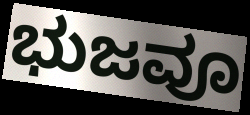
ಭುಜವೂ